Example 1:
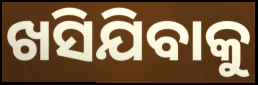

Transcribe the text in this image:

ଖସିଯିବାକୁ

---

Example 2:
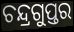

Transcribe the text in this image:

ଚନ୍ଦ୍ରଗୁପ୍ତର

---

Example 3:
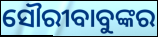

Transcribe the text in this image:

ସୌରୀବାବୁଙ୍କର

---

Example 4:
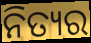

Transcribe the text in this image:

ନିତ୍ୟର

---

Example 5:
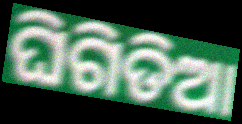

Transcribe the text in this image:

ଘିଗିଡିଆ